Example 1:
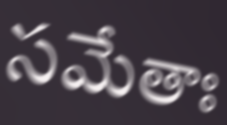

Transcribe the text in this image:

సమేతాః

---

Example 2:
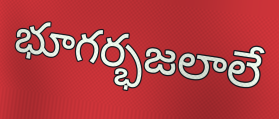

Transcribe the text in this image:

భూగర్భజలాలే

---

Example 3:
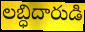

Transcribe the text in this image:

లబ్ధిదారుడి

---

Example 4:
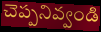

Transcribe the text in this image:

చెప్పనివ్వండి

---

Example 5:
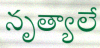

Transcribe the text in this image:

నృత్యాలే